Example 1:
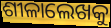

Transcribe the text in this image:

ଶୀଳାଲେଖକୁ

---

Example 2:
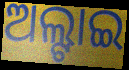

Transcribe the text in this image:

ଅଲ୍ଟାଇ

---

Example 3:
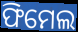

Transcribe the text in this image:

ଫିମେଲ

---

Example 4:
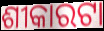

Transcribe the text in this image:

ଶୀକାରଟା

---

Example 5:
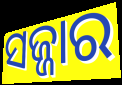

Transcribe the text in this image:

ସଜ୍ଜାର